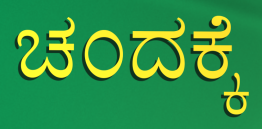
ಚಂದಕ್ಕೆ